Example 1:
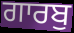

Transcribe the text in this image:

ਗਾਰਬੁ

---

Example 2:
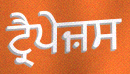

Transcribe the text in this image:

ਟ੍ਰੈਪੇਜ਼ਸ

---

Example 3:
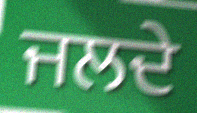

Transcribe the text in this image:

ਜਲਦੇ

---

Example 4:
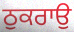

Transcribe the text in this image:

ਠੁਕਰਾਉ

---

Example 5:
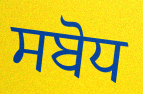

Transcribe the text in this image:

ਸਬੋਧ